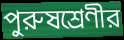
পুরুষশ্রেণীর